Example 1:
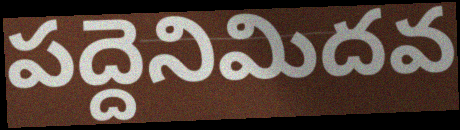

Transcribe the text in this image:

పద్దెనిమిదవ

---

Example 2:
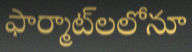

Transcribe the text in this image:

ఫార్మాట్‌లలోనూ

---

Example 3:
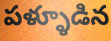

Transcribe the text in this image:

పళ్ళూడిన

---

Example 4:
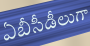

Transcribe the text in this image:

ఏబీసీడీలుగా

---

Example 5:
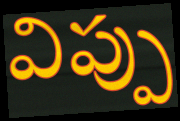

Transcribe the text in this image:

విప్పు